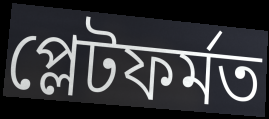
প্লেটফৰ্মত